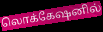
லொக்கேஷனில்